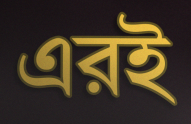
এরই